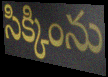
సిక్కింను